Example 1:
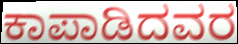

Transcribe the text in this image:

ಕಾಪಾಡಿದವರ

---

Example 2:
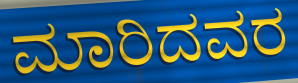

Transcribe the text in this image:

ಮಾರಿದವರ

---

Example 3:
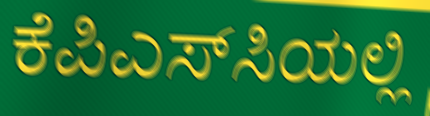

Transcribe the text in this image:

ಕೆಪಿಎಸ್‌ಸಿಯಲ್ಲಿ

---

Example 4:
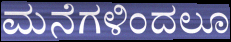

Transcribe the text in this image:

ಮನೆಗಳಿಂದಲೂ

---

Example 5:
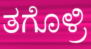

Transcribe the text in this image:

ತಗೊಳ್ರಿ